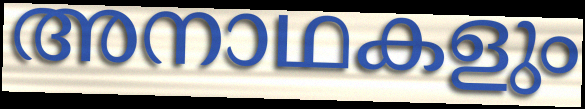
അനാഥകളും